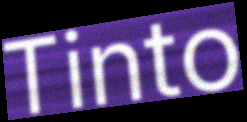
Tinto